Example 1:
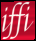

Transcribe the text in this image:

iffi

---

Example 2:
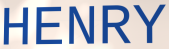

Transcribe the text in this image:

HENRY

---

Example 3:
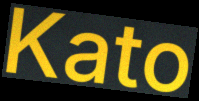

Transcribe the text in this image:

Kato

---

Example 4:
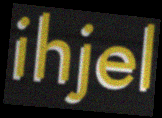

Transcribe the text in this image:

ihjel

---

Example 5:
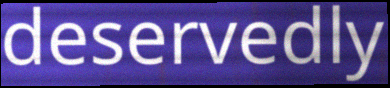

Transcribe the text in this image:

deservedly